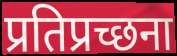
प्रतिप्रच्छना